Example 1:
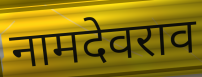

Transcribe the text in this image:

नामदेवराव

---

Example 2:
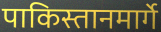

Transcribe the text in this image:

पाकिस्तानमार्गे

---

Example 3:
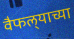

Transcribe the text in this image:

वैफल्याच्या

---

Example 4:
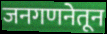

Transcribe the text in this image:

जनगणनेतून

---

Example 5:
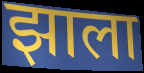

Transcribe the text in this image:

झाला